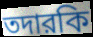
তদারকি